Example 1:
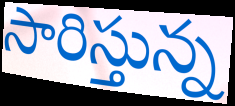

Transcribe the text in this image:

సారిస్తున్న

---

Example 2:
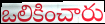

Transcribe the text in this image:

ఒలికించారు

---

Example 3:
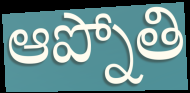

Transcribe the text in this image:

ఆప్నోతి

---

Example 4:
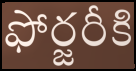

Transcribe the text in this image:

ఫోర్జరీకి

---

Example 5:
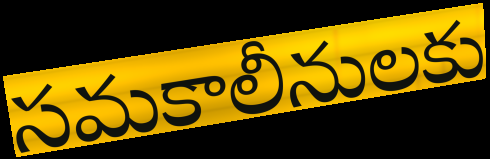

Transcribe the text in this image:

సమకాలీనులకు